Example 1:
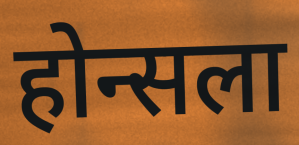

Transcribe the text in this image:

होन्सला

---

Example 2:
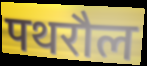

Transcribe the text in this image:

पथरौल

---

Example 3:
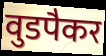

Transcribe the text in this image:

वुडपैकर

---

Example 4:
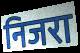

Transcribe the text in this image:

निजरा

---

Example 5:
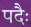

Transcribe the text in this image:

पदैः